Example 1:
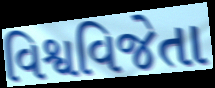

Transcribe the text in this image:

વિશ્વવિજેતા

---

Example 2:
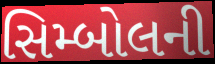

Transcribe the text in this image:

સિમ્બોલની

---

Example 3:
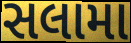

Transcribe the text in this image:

સલામા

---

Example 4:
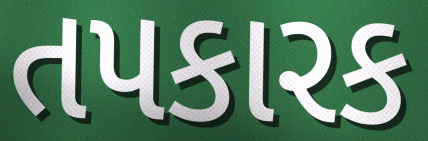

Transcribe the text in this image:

તપકારક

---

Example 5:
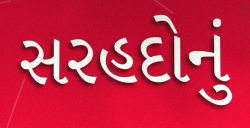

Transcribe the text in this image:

સરહદોનું